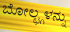
ಬೋಲ್ಟ್ಗಳನ್ನು